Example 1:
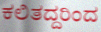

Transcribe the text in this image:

ಕಲಿತದ್ದರಿಂದ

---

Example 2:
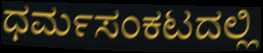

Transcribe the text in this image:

ಧರ್ಮಸಂಕಟದಲ್ಲಿ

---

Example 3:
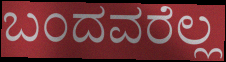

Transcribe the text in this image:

ಬಂದವರೆಲ್ಲ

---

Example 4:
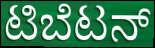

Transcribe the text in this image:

ಟಿಬೆಟನ್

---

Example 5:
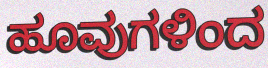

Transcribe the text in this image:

ಹೂವುಗಳಿಂದ